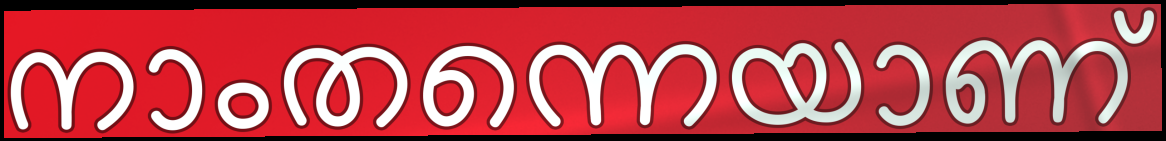
നാംതന്നെയാണ്